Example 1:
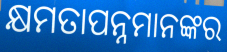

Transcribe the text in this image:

କ୍ଷମତାପନ୍ନମାନଙ୍କର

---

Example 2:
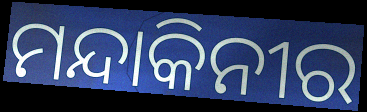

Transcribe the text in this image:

ମନ୍ଦାକିନୀର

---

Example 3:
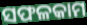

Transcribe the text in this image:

ସଫଳକାମ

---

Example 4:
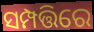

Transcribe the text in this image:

ସମ୍ପତ୍ତିରେ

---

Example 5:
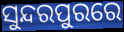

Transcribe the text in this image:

ସୁନ୍ଦରପୁରରେ